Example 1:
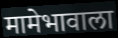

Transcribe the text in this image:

मामेभावाला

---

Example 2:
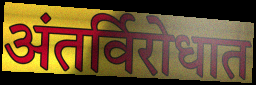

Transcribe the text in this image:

अंतर्विरोधात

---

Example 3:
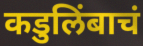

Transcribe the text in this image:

कडुलिंबाचं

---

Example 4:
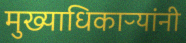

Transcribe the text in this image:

मुख्याधिकाऱ्यांनी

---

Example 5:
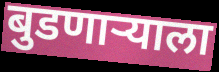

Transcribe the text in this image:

बुडणाऱ्याला